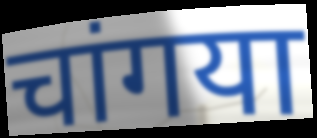
चांगया